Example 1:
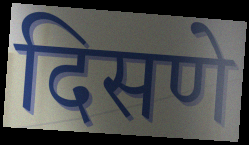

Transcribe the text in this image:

दिसणे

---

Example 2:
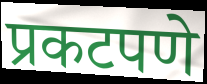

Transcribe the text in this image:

प्रकटपणे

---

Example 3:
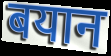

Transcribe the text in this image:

बयान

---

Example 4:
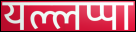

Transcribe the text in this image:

यल्लप्पा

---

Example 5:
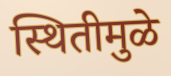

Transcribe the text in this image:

स्थितीमुळे